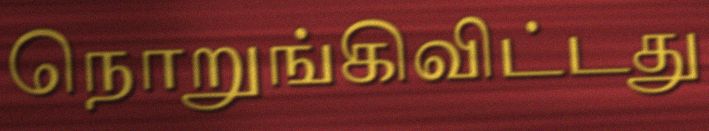
நொறுங்கிவிட்டது